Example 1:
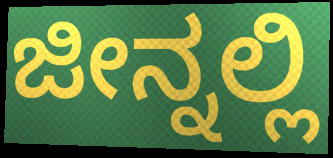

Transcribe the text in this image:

ಜೀನ್ನಲ್ಲಿ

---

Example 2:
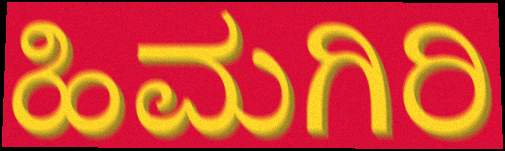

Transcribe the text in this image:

ಹಿಮಗಿರಿ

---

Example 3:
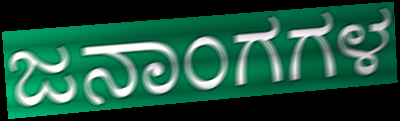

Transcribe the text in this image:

ಜನಾಂಗಗಳ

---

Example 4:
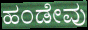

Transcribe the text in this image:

ಹಂಡೇವು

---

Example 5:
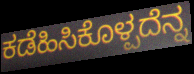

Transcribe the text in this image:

ಕಡೆಹಿಸಿಕೊಳ್ಪದೆನ್ನ